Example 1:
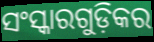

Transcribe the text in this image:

ସଂସ୍କାରଗୁଡ଼ିକର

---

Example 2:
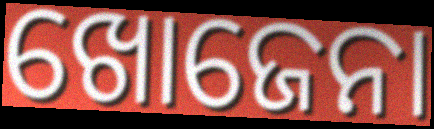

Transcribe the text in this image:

ଖୋଜେନା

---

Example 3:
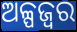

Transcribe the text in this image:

ଅଳ୍ପଜ୍ଵର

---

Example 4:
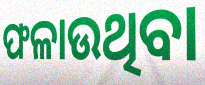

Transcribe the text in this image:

ଫଳାଉଥିବା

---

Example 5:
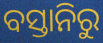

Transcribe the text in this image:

ବସ୍ତାନିରୁ